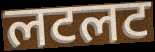
लटलट